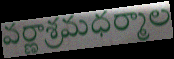
వర్ణాశ్రమధర్మాల